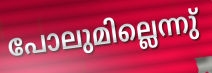
പോലുമില്ലെന്നു്